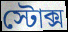
স্টোক্স